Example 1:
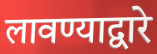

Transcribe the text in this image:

लावण्याद्वारे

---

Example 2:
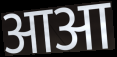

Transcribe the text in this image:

आआ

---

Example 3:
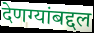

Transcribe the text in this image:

देणग्यांबद्दल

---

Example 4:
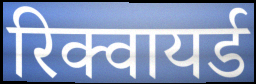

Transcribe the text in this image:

रिक्वायर्ड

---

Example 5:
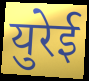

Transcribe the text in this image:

युरेई